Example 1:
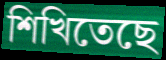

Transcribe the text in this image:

শিখিতেছে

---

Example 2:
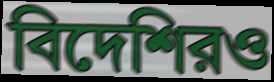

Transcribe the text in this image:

বিদেশিরও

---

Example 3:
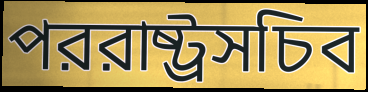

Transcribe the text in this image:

পররাষ্ট্রসচিব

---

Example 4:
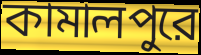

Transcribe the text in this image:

কামালপুরে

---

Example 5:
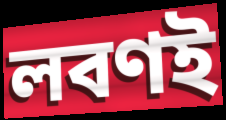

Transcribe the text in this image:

লবণই